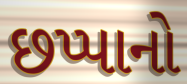
છપ્પાનો